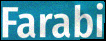
Farabi